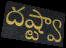
దష్ట్వా